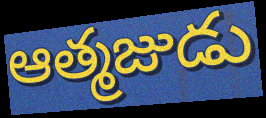
ఆత్మజుడు